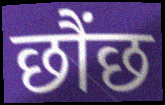
छौंछ